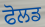
ਫੋਲਡ